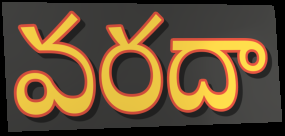
వరదా